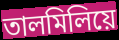
তালমিলিয়ে